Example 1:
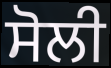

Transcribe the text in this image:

ਸੋਲੀ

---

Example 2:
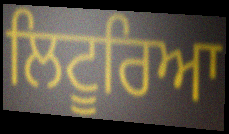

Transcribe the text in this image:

ਲਿਟੂਰਿਆ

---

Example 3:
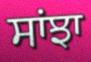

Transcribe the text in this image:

ਸਾਂਝਾ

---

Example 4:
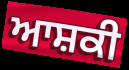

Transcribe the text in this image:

ਆਸ਼ਕੀ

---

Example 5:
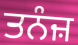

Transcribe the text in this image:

ਤਨੰਜ਼